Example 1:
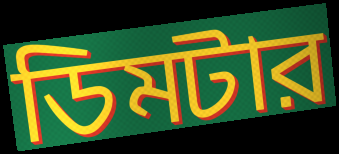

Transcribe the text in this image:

ডিমটার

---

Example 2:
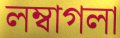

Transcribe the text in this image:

লম্বাগলা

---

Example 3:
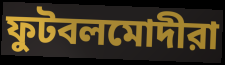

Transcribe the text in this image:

ফুটবলমোদীরা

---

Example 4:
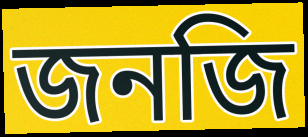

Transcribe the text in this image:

জনজি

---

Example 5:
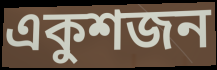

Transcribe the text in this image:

একুশজন